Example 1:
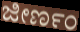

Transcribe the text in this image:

ಜೀರ್ಣಂ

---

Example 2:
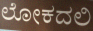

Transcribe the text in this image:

ಲೋಕದಲಿ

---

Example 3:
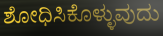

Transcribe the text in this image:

ಶೋಧಿಸಿಕೊಳ್ಳುವುದು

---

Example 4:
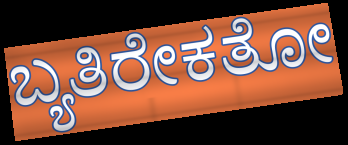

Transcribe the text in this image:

ಬ್ಯತಿರೇಕತೋ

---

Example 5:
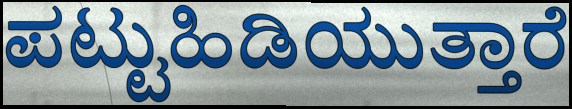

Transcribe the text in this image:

ಪಟ್ಟುಹಿಡಿಯುತ್ತಾರೆ